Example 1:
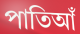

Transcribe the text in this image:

পাতিআঁ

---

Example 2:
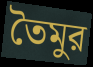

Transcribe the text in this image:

তৈমুর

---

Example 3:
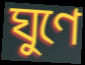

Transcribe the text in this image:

ঘুণে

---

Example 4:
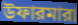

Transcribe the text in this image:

উফারমারা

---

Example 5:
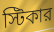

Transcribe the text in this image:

স্টিকার